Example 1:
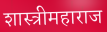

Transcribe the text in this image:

शास्त्रीमहाराज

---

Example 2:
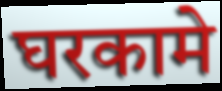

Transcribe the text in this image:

घरकामे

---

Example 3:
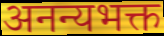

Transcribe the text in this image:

अनन्यभक्त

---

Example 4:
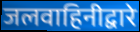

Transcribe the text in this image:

जलवाहिनीद्वारे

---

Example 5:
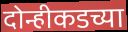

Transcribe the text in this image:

दोन्हीकडच्या